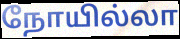
நோயில்லா